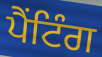
ਪੈਂਟਿੰਗ